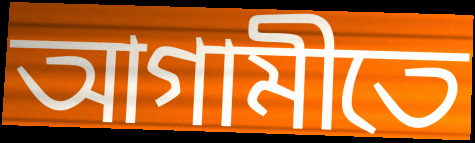
আগামীতে